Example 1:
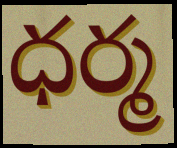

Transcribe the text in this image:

ధర్మ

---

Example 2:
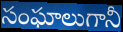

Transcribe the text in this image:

సంఘాలుగానీ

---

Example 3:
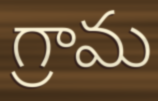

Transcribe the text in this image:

గ్రామ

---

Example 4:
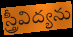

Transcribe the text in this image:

స్త్రీవిద్యను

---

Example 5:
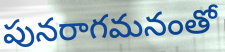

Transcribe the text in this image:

పునరాగమనంతో